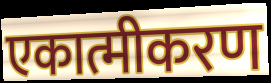
एकात्मीकरण